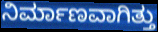
ನಿರ್ಮಾಣವಾಗಿತ್ತು